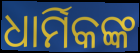
ଧାର୍ମିକଙ୍କ